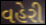
વહેરી